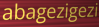
abagezigezi